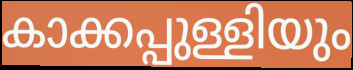
കാക്കപ്പുള്ളിയും